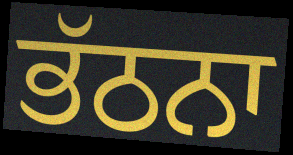
ਭੱਠਨਾ